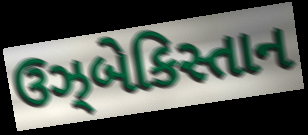
ઉઝ્બેકિસ્તાન